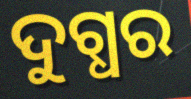
ଦୁଗ୍ଧର